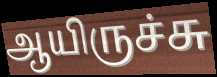
ஆயிருச்சு